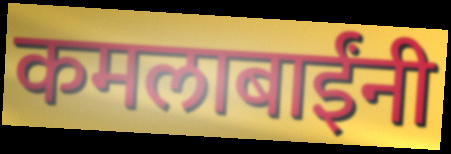
कमलाबाईंनी